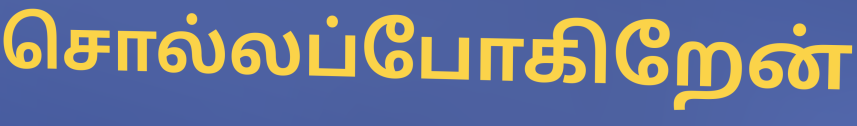
சொல்லப்போகிறேன்